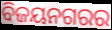
ବିଜୟନଗରର